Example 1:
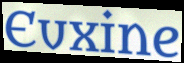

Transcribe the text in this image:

Euxine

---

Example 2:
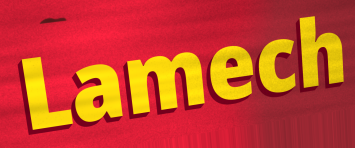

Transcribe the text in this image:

Lamech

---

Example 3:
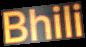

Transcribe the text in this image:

Bhili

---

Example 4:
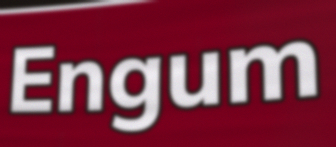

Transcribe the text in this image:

Engum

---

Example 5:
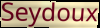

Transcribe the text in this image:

Seydoux